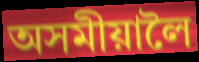
অসমীয়ালৈ